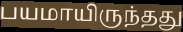
பயமாயிருந்தது